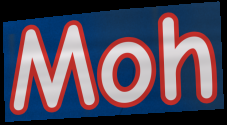
Moh